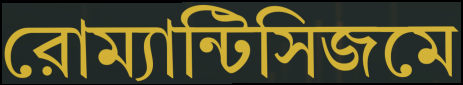
রোম্যান্টিসিজমে